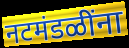
नटमंडळींना